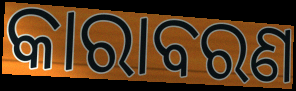
କାରାବରଣ